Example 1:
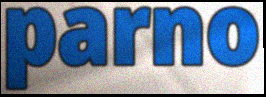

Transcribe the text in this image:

parno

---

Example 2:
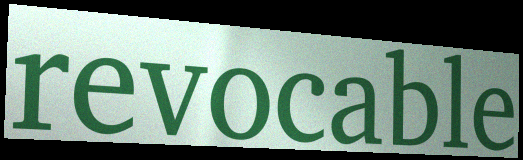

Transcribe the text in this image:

revocable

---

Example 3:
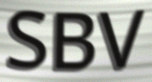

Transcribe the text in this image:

SBV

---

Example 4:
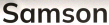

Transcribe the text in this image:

Samson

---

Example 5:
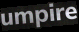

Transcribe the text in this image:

umpire